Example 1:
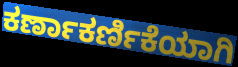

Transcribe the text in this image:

ಕರ್ಣಾಕರ್ಣಿಕೆಯಾಗಿ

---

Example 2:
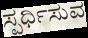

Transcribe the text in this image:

ಸ್ಪರ್ಧಿಸುವ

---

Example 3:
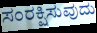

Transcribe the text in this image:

ಸಂರಕ್ಷಿಸುವುದು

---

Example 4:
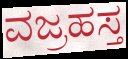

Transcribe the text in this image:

ವಜ್ರಹಸ್ತ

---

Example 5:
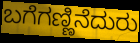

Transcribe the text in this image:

ಬಗೆಗಣ್ಣಿನೆದುರು